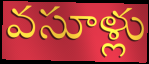
వసూళ్లు